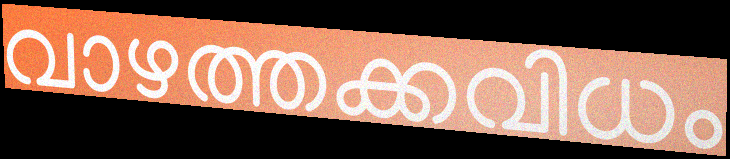
വാഴത്തക്കവിധം